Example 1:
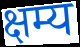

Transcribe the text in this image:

क्षम्य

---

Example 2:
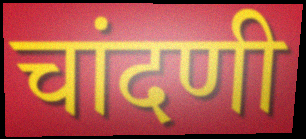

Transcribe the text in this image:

चांदणी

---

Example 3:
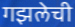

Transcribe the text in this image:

गझलेची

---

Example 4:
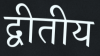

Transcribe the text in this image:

द्वीतीय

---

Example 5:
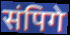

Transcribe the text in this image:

संपिगे